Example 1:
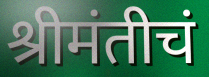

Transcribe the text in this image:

श्रीमंतीचं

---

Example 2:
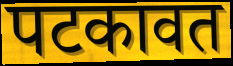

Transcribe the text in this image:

पटकावत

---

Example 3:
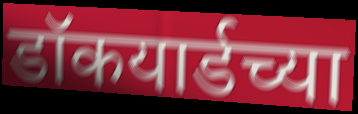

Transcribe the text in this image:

डॉकयार्डच्या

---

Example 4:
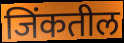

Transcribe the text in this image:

जिंकतील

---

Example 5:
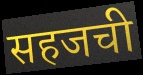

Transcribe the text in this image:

सहजची